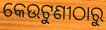
କେଉଟୁଣୀଠାରୁ